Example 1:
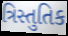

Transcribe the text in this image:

ત્રિસ્તુતિક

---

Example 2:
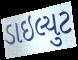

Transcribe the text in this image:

ડાઇલ્યુટ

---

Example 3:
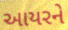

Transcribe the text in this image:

આયરને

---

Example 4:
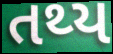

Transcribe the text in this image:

તથ્ય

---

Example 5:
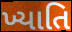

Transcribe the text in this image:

ખ્યાતિ